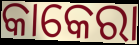
କାକେରା